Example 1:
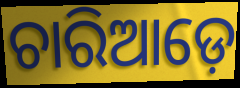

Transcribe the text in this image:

ଚାରିଆଡ଼େ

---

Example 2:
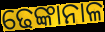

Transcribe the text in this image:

ଢେଙ୍କାନାଳ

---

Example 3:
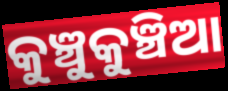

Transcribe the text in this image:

କୁଞ୍ଚୁକୁଞ୍ଚିଆ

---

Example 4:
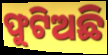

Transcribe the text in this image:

ଫୁଟିଅଛି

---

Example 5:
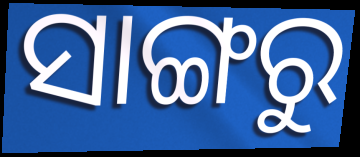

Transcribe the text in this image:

ସାଙ୍ଗରୁ